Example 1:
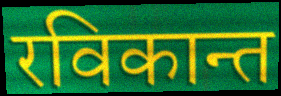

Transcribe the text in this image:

रविकान्त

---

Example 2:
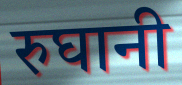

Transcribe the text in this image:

रुघानी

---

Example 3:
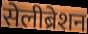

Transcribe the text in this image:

सेलीब्रेशन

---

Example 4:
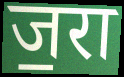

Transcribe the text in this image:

ज॒रा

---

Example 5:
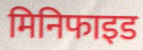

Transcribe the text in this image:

मिनिफाइड